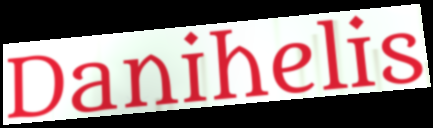
Danihelis